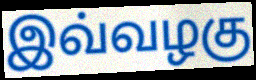
இவ்வழகு